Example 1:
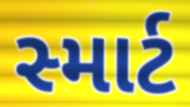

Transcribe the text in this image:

સ્માર્ટ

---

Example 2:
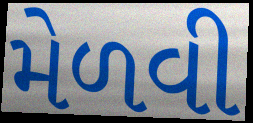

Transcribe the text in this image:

મેળવી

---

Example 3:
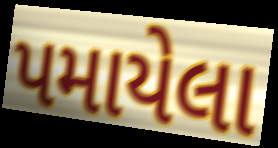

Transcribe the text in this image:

પમાયેલા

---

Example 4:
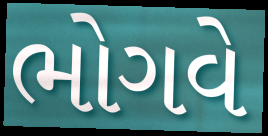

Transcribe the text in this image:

ભોગવે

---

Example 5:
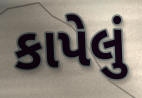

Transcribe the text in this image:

કાપેલું